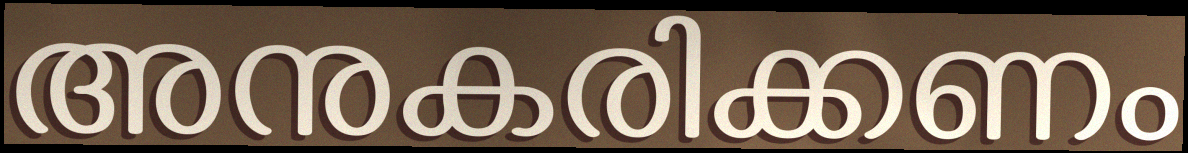
അനുകരിക്കണം